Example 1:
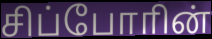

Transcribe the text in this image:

சிப்போரின்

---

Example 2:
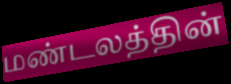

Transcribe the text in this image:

மண்டலத்தின்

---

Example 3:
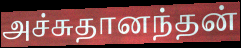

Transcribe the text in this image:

அச்சுதானந்தன்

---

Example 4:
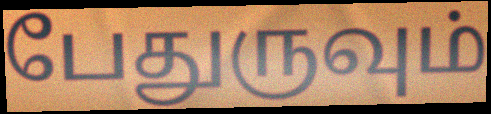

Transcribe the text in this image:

பேதுருவும்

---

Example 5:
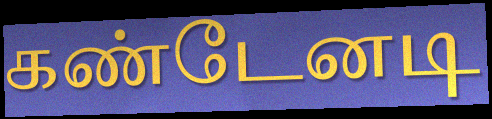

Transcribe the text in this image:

கண்டேனடி